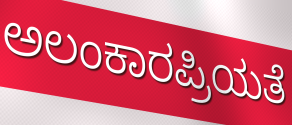
ಅಲಂಕಾರಪ್ರಿಯತೆ